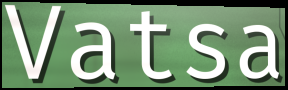
Vatsa